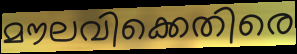
മൗലവിക്കെതിരെ